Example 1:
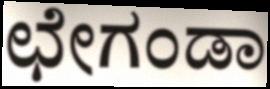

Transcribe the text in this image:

ಛೇಗಂಡಾ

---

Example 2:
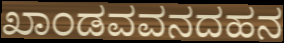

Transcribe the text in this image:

ಖಾಂಡವವನದಹನ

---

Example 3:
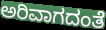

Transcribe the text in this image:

ಅರಿವಾಗದಂತೆ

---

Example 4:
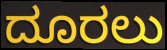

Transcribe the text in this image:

ದೂರಲು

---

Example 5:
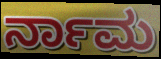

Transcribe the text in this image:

ರ್ನಾಮ